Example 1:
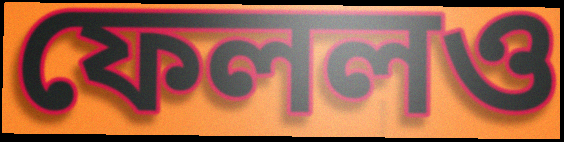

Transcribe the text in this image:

ফেললও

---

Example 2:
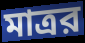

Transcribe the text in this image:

মাত্রর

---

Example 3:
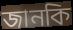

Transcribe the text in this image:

জানকি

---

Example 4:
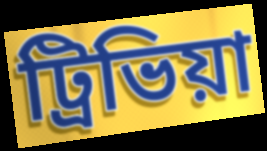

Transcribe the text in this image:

ট্রিভিয়া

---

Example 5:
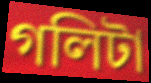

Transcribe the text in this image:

গলিটা